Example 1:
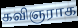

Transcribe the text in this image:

கவிஞராக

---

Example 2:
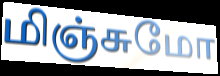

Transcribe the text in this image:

மிஞ்சுமோ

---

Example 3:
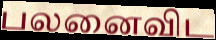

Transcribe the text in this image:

பலனைவிட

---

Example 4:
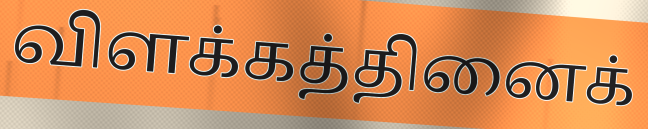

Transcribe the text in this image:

விளக்கத்தினைக்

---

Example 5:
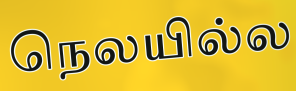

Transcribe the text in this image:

நெலயில்ல